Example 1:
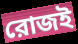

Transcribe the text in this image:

রোজই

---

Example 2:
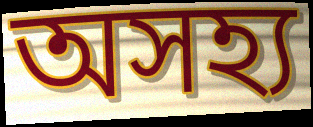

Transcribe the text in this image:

অসহ্য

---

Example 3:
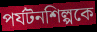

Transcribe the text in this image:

পর্যটনশিল্পকে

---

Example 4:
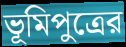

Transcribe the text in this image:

ভূমিপুত্রের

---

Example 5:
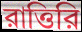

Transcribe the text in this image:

রাত্তিরি